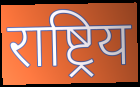
राष्ट्रिय